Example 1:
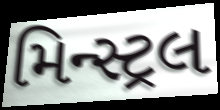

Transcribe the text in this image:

મિન્સ્ટ્રલ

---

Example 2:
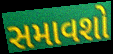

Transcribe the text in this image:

સમાવશો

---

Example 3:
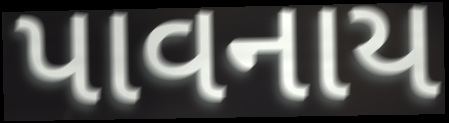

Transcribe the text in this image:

પાવનાય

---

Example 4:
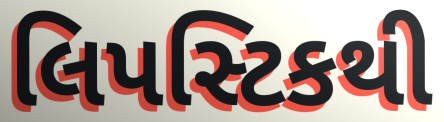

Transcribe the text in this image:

લિપસ્ટિકથી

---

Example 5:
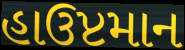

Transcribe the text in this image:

હાઉપ્ટમાન